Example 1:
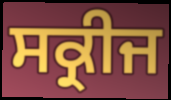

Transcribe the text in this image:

ਸਕ੍ਰੀਜ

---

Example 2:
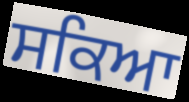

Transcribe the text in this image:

ਸਕਿਆ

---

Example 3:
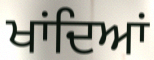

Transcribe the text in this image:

ਖਾਂਦਿਆਂ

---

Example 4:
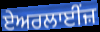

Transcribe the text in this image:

ਏਅਰਲਾਈਂਜ਼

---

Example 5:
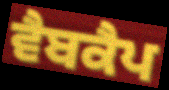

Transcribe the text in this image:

ਵੈਬਕੈਪ